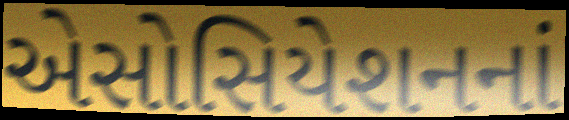
એસોસિયેશનનાં